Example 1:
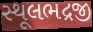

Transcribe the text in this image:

સ્થૂલભદ્રજી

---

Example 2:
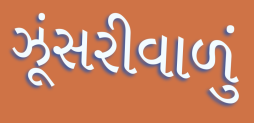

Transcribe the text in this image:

ઝૂંસરીવાળું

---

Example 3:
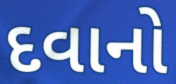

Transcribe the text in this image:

દવાનો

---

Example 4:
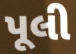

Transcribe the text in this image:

પૂલી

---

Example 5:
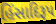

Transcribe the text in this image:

હિંસાદિરૂપ